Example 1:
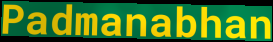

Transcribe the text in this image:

Padmanabhan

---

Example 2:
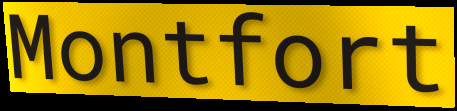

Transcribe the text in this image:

Montfort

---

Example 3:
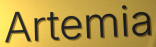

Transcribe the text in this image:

Artemia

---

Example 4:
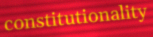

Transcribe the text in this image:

constitutionality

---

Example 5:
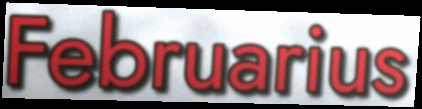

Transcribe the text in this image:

Februarius